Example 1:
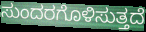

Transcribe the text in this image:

ಸುಂದರಗೊಳಿಸುತ್ತದೆ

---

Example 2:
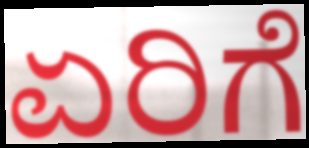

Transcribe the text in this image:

ಏರಿಗೆ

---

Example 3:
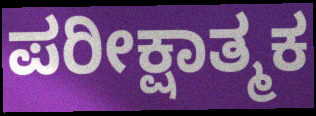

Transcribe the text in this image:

ಪರೀಕ್ಷಾತ್ಮಕ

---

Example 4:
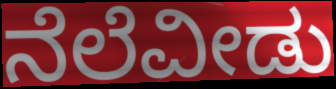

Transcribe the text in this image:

ನೆಲೆವೀಡು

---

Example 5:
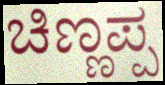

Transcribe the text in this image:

ಚಿಣ್ಣಪ್ಪ